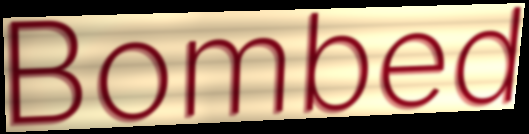
Bombed